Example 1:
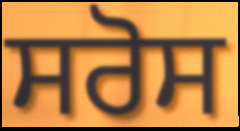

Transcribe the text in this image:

ਸਰੋਸ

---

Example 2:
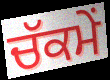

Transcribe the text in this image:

ਚੱਕਮੇਂ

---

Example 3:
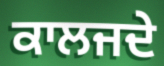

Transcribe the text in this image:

ਕਾਲਜਦੇ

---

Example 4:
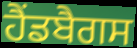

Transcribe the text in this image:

ਹੈਂਡਬੈਗਸ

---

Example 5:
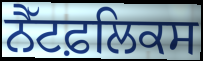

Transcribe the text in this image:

ਨੈੱਟਫ਼ਲਿਕਸ